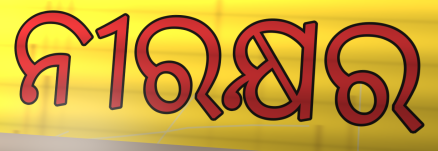
ନୀରକ୍ଷର